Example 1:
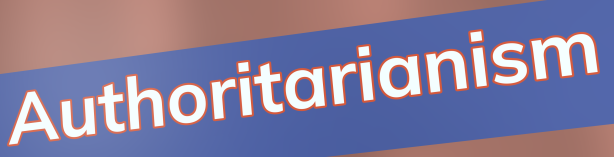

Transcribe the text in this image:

Authoritarianism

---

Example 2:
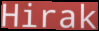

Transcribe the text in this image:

Hirak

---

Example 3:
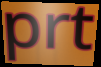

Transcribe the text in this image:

prt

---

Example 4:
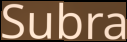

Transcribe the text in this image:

Subra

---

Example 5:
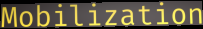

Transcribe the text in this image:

Mobilization